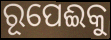
ରୂପେଈକୁ